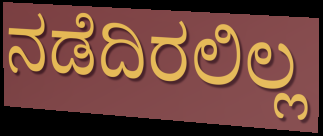
ನಡೆದಿರಲಿಲ್ಲ